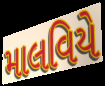
માલવિયે